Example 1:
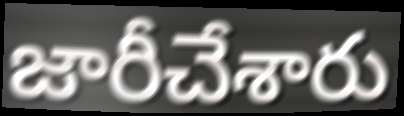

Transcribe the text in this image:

జారీచేశారు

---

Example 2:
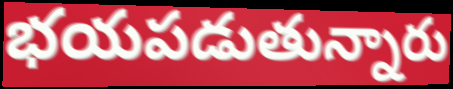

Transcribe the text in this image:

భయపడుతున్నారు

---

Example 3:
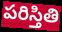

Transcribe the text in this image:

పరిస్తితి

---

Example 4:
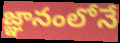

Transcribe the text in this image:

జ్ఞానంలోనే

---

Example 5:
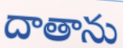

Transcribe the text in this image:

దాతాను